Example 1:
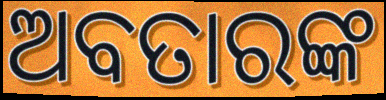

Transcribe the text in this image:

ଅବତାରଙ୍କ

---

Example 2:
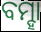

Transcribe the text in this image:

ବମ୍ହା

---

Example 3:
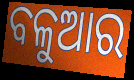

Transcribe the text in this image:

ବଳୁଆର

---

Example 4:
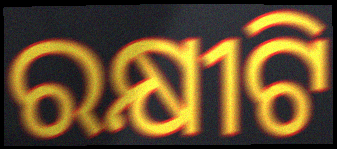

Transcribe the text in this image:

ରକ୍ଷୀଟି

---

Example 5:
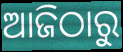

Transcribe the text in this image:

ଆଜିଠାରୁ